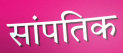
सांपतिक